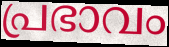
പ്രഭാവം